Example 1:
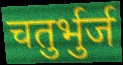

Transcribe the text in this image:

चतुर्भुर्ज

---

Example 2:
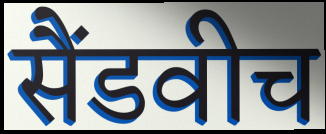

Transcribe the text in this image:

सैंडवीच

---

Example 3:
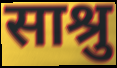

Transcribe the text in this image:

साश्रु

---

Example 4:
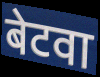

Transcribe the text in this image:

बेटवा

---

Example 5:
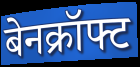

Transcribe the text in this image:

बेनक्रॉफ्ट